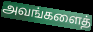
அவங்களைத்